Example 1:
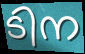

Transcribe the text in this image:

ടിന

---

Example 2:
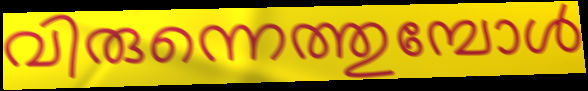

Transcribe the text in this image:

വിരുന്നെത്തുമ്പോൾ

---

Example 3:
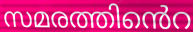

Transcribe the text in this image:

സമരത്തിൻെറ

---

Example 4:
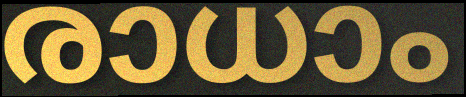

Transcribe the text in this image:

രാധാം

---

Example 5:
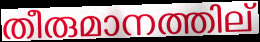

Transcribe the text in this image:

തീരുമാനത്തില്